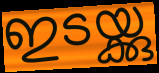
ഇടയ്ക്കു